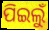
ପିଇଲୁଁ